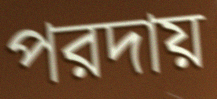
পরদায়